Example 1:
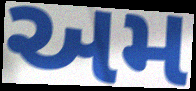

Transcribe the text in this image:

અમ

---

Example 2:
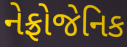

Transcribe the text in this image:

નેફ્રોજેનિક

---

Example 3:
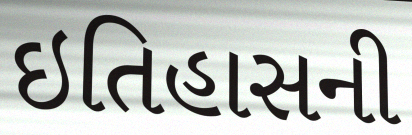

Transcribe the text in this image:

ઇતિહાસની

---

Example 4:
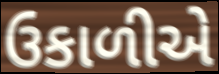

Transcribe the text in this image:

ઉકાળીએ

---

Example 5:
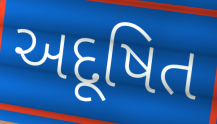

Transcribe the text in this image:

અદૂષિત